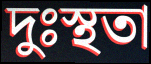
দুঃস্থতা